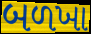
બળખા